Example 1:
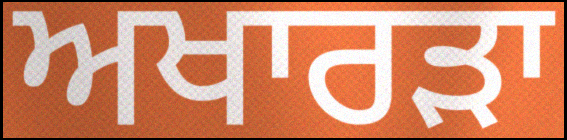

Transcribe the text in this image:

ਅਖਾਰੜਾ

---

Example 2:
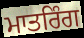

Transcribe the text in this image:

ਮਾਤਰਿੰਗ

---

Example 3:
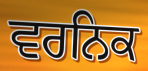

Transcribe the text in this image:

ਵਰਨਿਕ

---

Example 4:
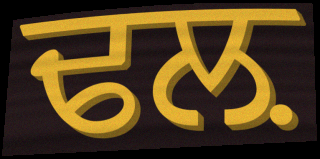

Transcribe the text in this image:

ਢਲ਼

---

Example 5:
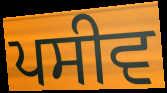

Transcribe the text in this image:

ਪਸੀਵ